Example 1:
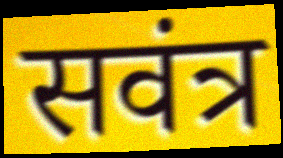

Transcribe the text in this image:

सवंत्र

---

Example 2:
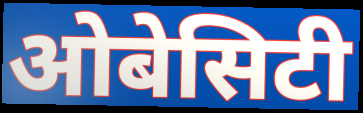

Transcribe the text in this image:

ओबेसिटी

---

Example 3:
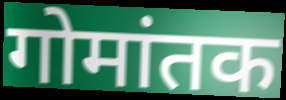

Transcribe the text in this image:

गोमांतक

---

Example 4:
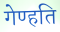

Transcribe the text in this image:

गेण्हति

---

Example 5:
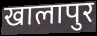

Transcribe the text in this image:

खालापुर